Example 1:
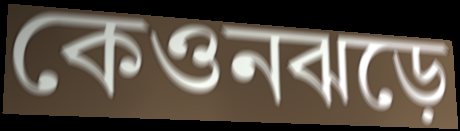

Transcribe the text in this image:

কেওনঝড়ে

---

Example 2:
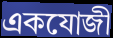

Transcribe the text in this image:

একযোজী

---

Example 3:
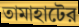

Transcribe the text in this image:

তামাহাটের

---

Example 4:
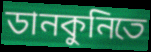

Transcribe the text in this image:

ডানকুনিতে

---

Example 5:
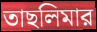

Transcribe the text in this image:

তাছলিমার